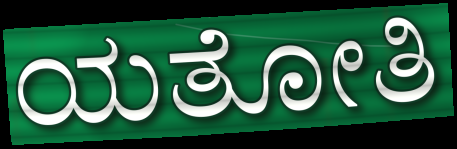
ಯತೋತಿ